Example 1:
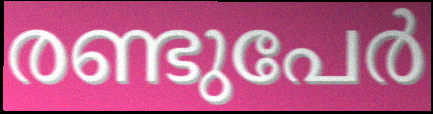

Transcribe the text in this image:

രണ്ടുപേർ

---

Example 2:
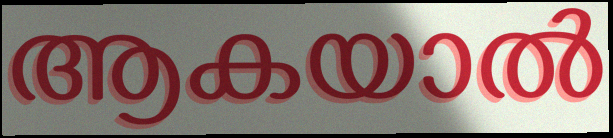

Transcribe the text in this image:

ആകയാൽ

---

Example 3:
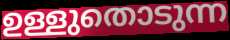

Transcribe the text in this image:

ഉള്ളുതൊടുന്ന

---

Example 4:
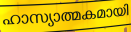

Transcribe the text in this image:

ഹാസ്യാത്മകമായി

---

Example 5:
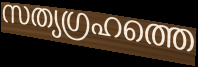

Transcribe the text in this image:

സത്യഗ്രഹത്തെ